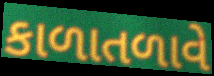
કાળાતળાવે